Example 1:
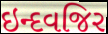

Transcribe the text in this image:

ઇન્દવજિર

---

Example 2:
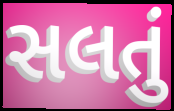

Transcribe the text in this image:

સલતું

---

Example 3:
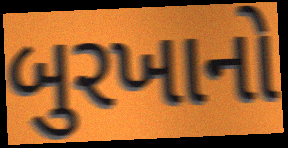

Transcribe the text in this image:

બુરખાનો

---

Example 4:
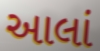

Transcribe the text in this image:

આલાં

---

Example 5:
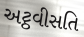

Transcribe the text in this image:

અટ્ઠવીસતિ